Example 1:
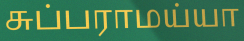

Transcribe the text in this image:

சுப்பராமய்யா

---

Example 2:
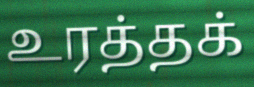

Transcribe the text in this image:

உரத்தக்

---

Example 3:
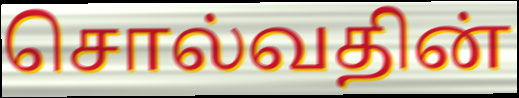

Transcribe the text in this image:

சொல்வதின்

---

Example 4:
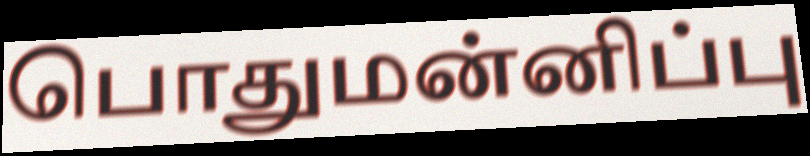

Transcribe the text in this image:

பொதுமன்னிப்பு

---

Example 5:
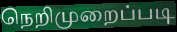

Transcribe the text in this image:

நெறிமுறைப்படி